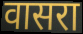
वासरा